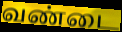
வண்டை